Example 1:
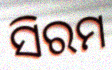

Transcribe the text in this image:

ସିରମ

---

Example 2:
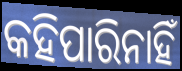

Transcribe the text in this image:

କହିପାରିନାହିଁ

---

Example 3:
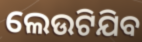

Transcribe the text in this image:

ଲେଉଟିଯିବ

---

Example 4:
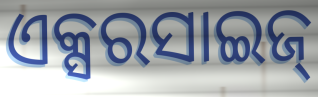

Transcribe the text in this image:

ଏକ୍ସରସାଇଜ୍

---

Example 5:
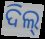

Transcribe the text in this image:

ଦିଲ୍